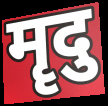
मॄदु